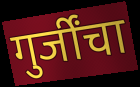
गुर्जींचा